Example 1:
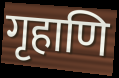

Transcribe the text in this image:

गृहाणि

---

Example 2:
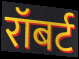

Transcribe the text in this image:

रॉबर्ट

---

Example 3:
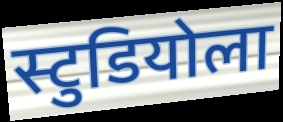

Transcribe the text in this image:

स्टुडियोला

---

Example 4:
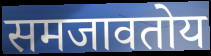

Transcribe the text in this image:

समजावतोय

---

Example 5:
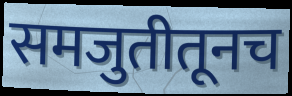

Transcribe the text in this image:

समजुतीतूनच